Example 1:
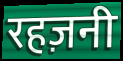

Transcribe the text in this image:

रहज़नी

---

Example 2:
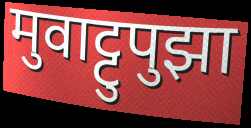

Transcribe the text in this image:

मुवाट्टुपुझा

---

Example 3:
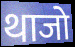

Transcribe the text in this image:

थाजो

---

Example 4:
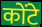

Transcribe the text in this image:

कोंटे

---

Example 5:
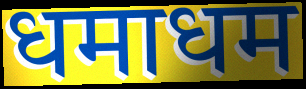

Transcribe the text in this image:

धमाधम